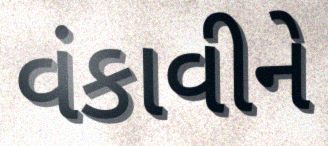
વંકાવીને